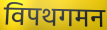
विपथगमन